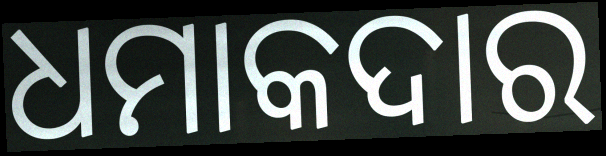
ଧମାକଦାର